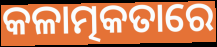
କଳାତ୍ମକତାରେ